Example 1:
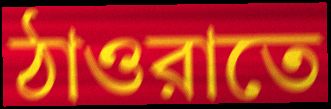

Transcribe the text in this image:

ঠাওরাতে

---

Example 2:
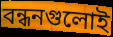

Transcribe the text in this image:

বন্ধনগুলোই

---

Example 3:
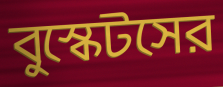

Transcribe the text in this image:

বুস্কেটসের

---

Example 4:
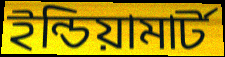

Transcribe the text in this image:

ইন্ডিয়ামার্ট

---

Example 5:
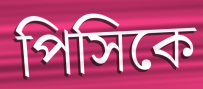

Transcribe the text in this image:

পিসিকে